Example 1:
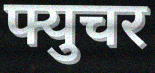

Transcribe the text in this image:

फ्युचर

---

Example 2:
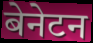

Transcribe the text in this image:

बेनेटन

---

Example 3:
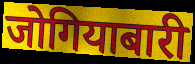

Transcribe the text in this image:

जोगियाबारी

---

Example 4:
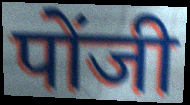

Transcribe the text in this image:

पोंजी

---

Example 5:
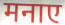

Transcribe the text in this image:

मनाए